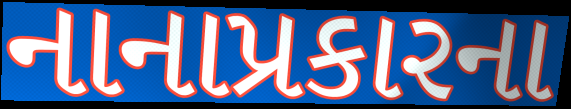
નાનાપ્રકારના